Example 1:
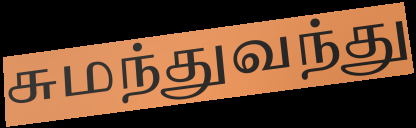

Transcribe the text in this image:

சுமந்துவந்து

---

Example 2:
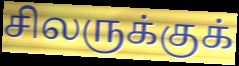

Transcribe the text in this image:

சிலருக்குக்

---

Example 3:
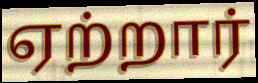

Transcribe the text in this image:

ஏற்றார்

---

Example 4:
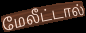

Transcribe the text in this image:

மேலீட்டால்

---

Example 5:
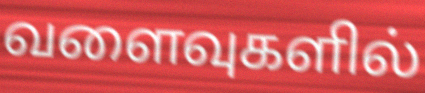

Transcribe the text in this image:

வளைவுகளில்